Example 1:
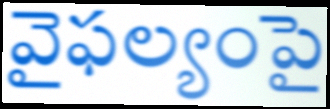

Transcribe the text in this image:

వైఫల్యంపై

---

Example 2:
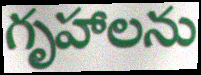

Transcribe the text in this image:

గృహాలను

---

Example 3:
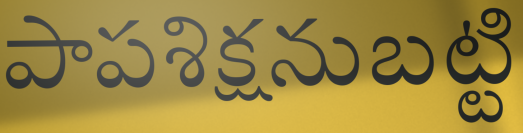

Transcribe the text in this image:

పాపశిక్షనుబట్టి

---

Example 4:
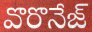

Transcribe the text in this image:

వొరొనేజ్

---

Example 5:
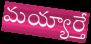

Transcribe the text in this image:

మయ్యార్తే